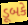
ડૂબકે